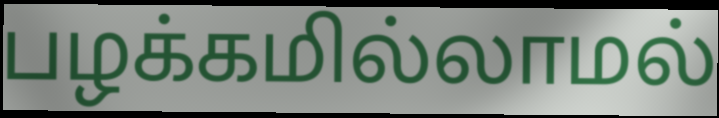
பழக்கமில்லாமல்